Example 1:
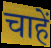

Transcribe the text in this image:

चाहें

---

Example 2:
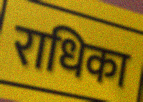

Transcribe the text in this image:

राधिका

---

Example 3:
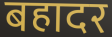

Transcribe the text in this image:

बहादर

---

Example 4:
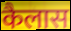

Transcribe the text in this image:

कैलास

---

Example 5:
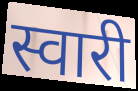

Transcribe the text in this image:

स्वारी